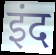
इंद